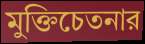
মুক্তিচেতনার